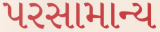
પરસામાન્ય